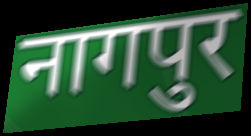
नागपुर